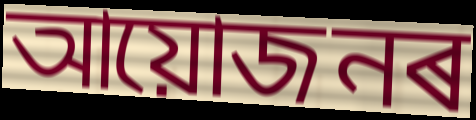
আয়োজনৰ